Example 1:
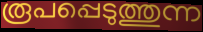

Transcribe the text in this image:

രൂപപ്പെടുത്തുന്ന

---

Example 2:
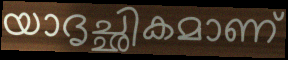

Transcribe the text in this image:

യാദൃച്ഛികമാണ്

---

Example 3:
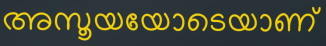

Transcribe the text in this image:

അസൂയയോടെയാണ്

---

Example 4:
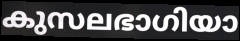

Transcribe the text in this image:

കുസലഭാഗിയാ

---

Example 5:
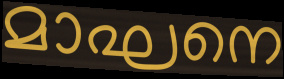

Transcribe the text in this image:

മാഘനെ